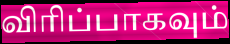
விரிப்பாகவும்